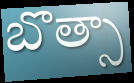
బొత్సా